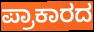
ಪ್ರಾಕಾರದ